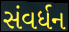
સંવર્ધન